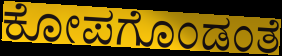
ಕೋಪಗೊಂಡಂತೆ